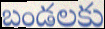
బండలకు